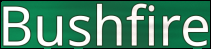
Bushfire